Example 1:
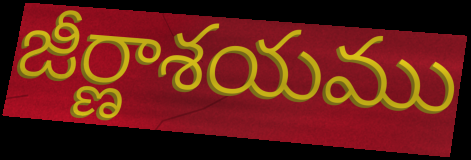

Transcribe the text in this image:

జీర్ణాశయము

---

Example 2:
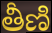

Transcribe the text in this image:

తీణి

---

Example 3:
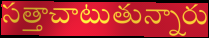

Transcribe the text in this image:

సత్తాచాటుతున్నారు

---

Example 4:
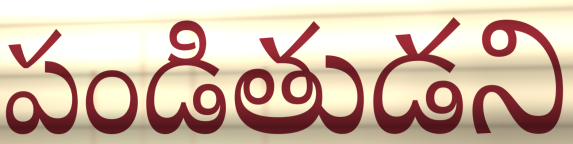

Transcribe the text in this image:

పండితుడని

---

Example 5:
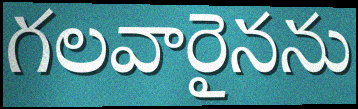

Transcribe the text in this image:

గలవారైనను